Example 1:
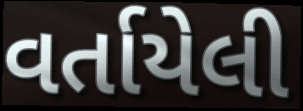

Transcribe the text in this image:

વર્તાયેલી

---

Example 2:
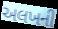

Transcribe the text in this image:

અલખની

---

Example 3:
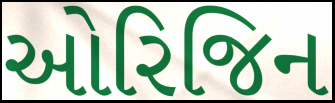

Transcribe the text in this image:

ઓરિજિન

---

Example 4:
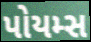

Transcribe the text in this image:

પોયમ્સ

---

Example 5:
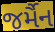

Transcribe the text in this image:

જર્મૈન